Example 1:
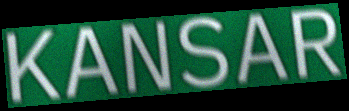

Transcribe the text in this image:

KANSAR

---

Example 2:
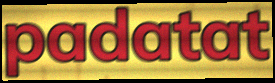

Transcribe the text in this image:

padatat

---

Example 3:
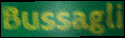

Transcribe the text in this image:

Bussagli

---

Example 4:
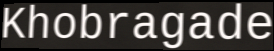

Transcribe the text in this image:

Khobragade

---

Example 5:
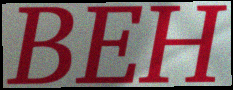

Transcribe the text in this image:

BEH